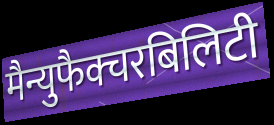
मैन्युफैक्चरबिलिटी